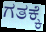
ಗತಕ್ಕೆ